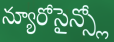
న్యూరోసైన్స్లో